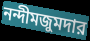
নন্দীমজুমদার